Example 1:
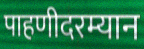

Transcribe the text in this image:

पाहणीदरम्यान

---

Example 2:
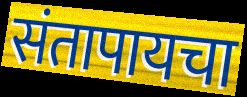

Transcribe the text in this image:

संतापायचा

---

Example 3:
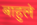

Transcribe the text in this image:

बाहुलं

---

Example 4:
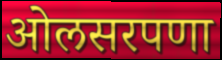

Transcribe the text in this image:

ओलसरपणा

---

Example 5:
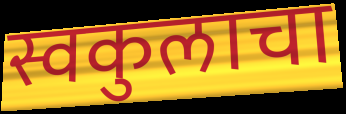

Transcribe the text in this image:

स्वकुलाचा